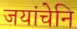
जयांचेनि